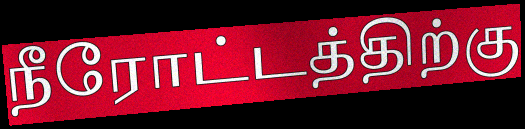
நீரோட்டத்திற்கு